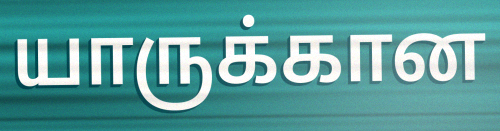
யாருக்கான